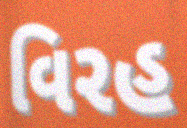
વિરહ